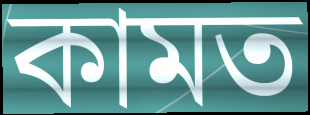
কামত